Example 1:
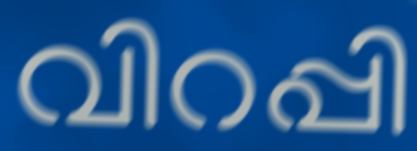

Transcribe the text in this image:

വിറപ്പി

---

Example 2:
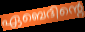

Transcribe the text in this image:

ഏബെദിന്റെ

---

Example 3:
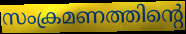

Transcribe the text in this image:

സംക്രമണത്തിന്റെ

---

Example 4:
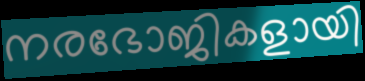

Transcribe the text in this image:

നരഭോജികളായി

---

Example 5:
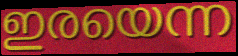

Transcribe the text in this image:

ഇരയെന്ന